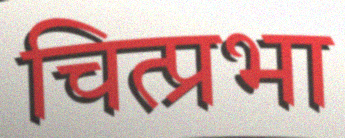
चित्प्रभा